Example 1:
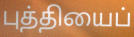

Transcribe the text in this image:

புத்தியைப்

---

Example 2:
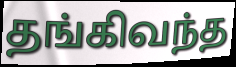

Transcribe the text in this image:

தங்கிவந்த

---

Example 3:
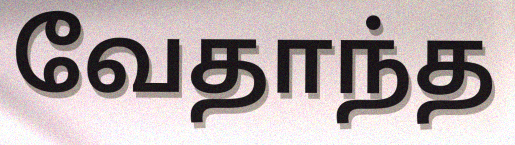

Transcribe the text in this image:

வேதாந்த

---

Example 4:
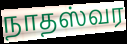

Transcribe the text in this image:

நாதஸ்வர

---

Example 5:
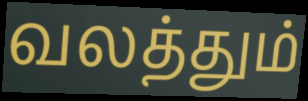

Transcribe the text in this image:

வலத்தும்